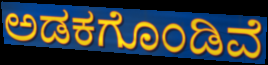
ಅಡಕಗೊಂಡಿವೆ